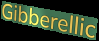
Gibberellic